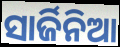
ସାର୍ଜିନିଆ